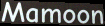
Mamoon